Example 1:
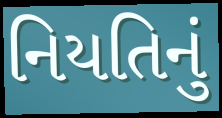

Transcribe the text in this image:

નિયતિનું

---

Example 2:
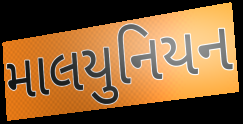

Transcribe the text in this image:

માલયુનિયન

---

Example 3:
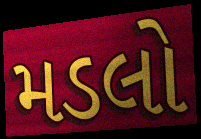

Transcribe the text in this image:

મડલો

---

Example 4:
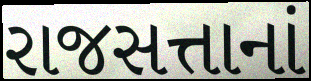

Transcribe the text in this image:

રાજસત્તાનાં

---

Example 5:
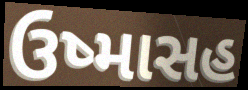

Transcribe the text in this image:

ઉષ્માસહ